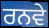
ਰਨਵੇ